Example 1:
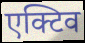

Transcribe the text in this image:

एक्टिव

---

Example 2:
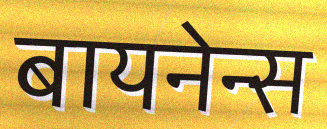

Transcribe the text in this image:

बायनेन्स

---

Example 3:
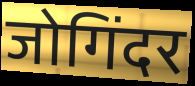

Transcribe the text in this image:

जोगिंदर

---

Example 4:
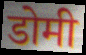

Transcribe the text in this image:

डोमी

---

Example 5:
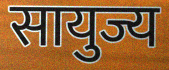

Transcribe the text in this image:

सायुज्य